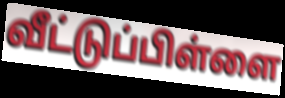
வீட்டுப்பிள்ளை